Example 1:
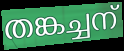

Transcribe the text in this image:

തങ്കച്ചന്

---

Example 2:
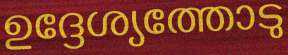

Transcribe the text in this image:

ഉദ്ദേശ്യത്തോടു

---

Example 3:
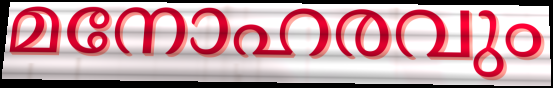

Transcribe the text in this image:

മനോഹരവും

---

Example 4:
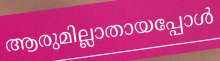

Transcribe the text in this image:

ആരുമില്ലാതായപ്പോൾ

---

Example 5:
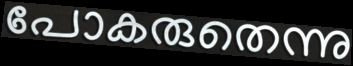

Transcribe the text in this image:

പോകരുതെന്നു